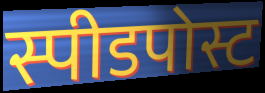
स्पीडपोस्ट